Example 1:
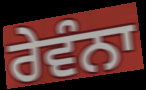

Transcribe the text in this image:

ਰੇਵੰਨਾ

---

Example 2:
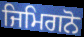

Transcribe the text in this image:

ਜਿਮਿਗਨੋ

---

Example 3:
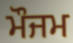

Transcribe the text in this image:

ਮੌਜਮ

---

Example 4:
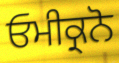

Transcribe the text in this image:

ਓਮੀਕ੍ਰਨੋ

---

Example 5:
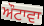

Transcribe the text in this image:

ਔਟਾਵਾ